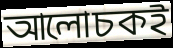
আলোচকই